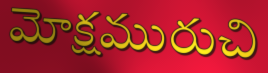
మోక్షమురుచి